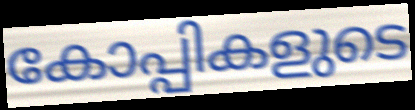
കോപ്പികളുടെ